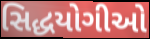
સિદ્ધયોગીઓ